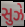
સુઝે